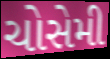
ચોસેમી